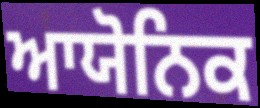
ਆਯੋਨਿਕ